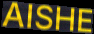
AISHE